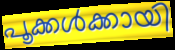
പൂക്കൾക്കായി